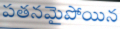
పతనమైపోయిన